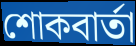
শোকবার্তা